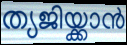
ത്യജിയ്ക്കാൻ